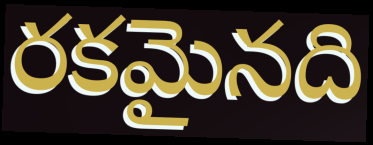
రకమైనది